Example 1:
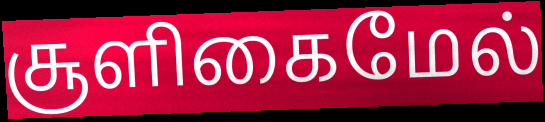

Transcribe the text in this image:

சூளிகைமேல்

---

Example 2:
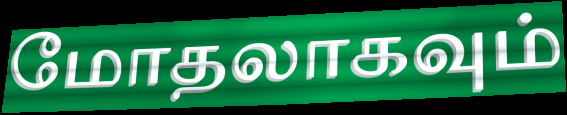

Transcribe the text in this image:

மோதலாகவும்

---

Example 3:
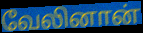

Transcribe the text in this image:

வேலினான்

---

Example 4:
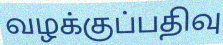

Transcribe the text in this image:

வழக்குப்பதிவு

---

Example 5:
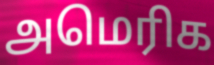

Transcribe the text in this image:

அமெரிக